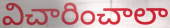
విచారించాలా